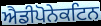
ਐਡੀਪੋਨੇਕਟਿਨ